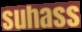
suhass